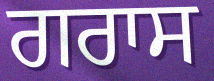
ਗਰਾਸ